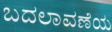
ಬದಲಾವಣೆಯ